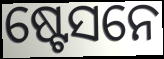
ଷ୍ଟେସନେ